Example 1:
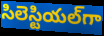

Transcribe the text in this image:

సిలెస్టియల్‌గా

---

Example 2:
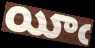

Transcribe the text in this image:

యీఁ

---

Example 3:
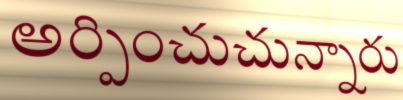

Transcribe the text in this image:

అర్పించుచున్నారు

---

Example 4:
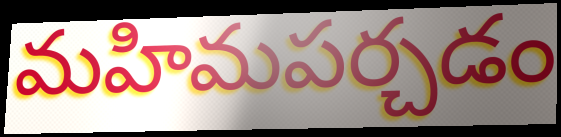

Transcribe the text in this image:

మహిమపర్చడం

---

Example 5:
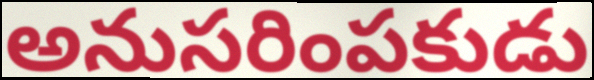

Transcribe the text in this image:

అనుసరింపకుడు